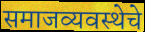
समाजव्यवस्थेचे